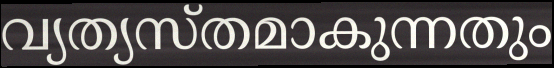
വ്യത്യസ്തമാകുന്നതും